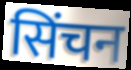
सिंचन